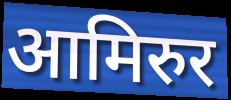
आमिरुर